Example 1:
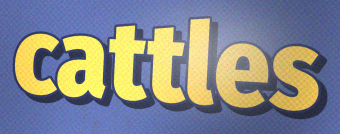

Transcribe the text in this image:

cattles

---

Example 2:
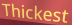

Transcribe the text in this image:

Thickest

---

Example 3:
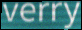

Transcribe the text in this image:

verry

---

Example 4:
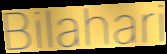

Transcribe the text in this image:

Bilahari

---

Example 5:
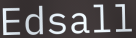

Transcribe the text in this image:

Edsall